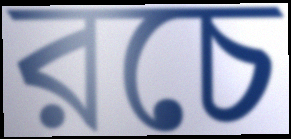
রচে